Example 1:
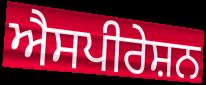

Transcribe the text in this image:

ਐਸਪੀਰੇਸ਼ਨ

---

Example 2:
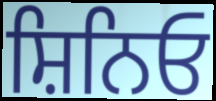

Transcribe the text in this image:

ਸ਼ਿਨਿਓ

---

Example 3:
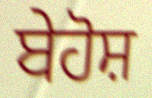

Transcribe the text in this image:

ਬੇਹੋਸ਼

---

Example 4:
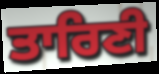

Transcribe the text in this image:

ਤਾਰਿਣੀ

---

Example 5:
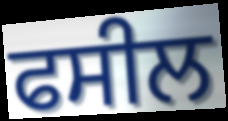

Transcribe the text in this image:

ਫਸੀਲ